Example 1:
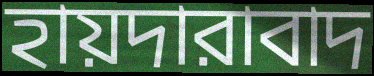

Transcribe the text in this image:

হায়দারাবাদ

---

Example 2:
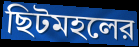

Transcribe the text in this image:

ছিটমহলের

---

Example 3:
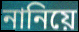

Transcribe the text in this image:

নানিয়ে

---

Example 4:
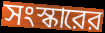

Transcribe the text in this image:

সংস্কারের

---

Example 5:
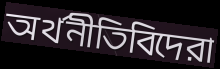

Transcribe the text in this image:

অর্থনীতিবিদেরা